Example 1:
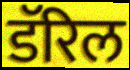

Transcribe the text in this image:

डॅरिल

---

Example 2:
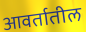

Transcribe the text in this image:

आवर्तातील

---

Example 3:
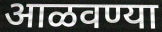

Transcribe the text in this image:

आळवण्या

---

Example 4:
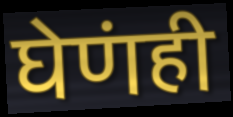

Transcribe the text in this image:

घेणंही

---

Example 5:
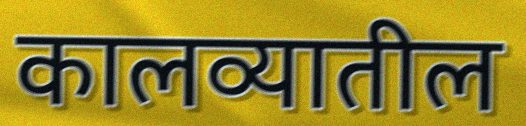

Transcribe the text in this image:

कालव्यातील